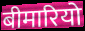
बीमारियो